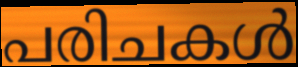
പരിചകൾ